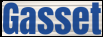
Gasset